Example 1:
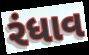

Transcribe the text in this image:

રંધાવ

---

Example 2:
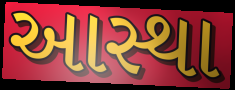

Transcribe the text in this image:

આસ્થા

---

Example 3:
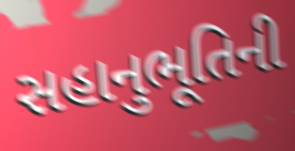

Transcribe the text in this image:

સહાનુભૂતિની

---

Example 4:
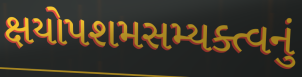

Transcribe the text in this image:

ક્ષયોપશમસમ્યક્ત્વનું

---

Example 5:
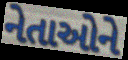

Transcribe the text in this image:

નેતાઓને